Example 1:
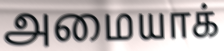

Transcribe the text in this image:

அமையாக்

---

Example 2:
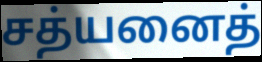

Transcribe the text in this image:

சத்யனைத்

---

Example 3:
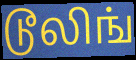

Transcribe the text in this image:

டூலிங்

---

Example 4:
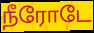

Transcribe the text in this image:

நீரோடே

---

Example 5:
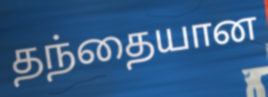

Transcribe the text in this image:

தந்தையான